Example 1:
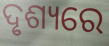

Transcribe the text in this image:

ଦୃଶ୍ୟରେ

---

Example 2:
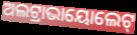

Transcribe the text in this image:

ଅଲଟ୍ରାଭାୟୋଲେଟ୍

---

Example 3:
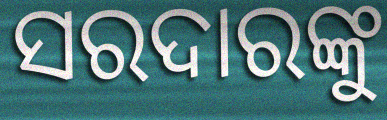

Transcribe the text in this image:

ସରଦାରଙ୍କୁ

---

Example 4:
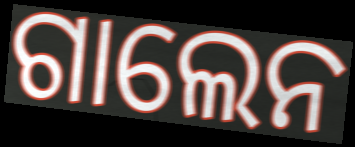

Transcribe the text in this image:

ଗାଲେନ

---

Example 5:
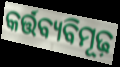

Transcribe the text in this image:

କର୍ତ୍ତବ୍ୟବିମୂଢ଼